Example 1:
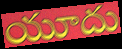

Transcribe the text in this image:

యూదు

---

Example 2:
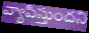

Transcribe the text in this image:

వ్యాపిస్తుందని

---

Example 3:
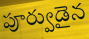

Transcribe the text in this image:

పూర్వుడైన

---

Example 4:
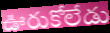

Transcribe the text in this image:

ఊరుకోలేడు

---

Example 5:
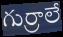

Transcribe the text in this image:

గుర్రాలే